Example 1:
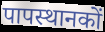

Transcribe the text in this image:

पापस्थानकों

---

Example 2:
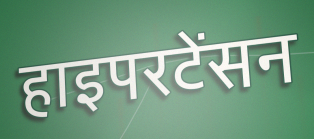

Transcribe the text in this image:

हाइपरटेंसन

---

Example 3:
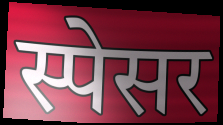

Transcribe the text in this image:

स्पेसर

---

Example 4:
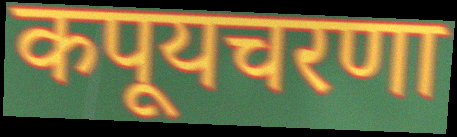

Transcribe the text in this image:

कपूयचरणा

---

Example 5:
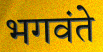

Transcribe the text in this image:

भगवंते